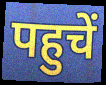
पहुचें